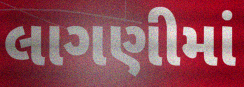
લાગણીમાં